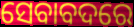
ସେବାବଦରେ